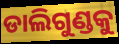
ଡାଲିଗୁଣ୍ଡକୁ